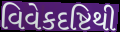
વિવેકદષ્ટિથી